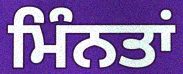
ਮਿੰਨਤਾਂ